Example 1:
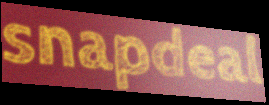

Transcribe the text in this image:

snapdeal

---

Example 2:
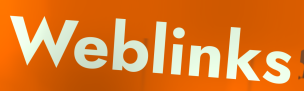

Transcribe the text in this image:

Weblinks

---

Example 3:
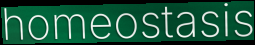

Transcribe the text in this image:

homeostasis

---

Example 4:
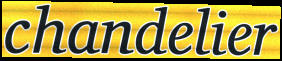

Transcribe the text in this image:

chandelier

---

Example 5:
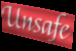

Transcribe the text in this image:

Unsafe